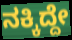
ನಕ್ಕಿದ್ದೇ